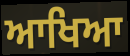
ਆਖਿਆ